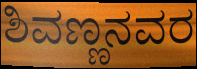
ಶಿವಣ್ಣನವರ